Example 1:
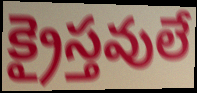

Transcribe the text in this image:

క్రైస్తవులే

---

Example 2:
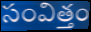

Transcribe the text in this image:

సంవిత్తం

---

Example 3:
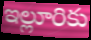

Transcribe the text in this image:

ఇల్లూరికు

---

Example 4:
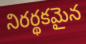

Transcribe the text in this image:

నిరర్థకమైన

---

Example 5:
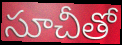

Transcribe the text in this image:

సూచీతో